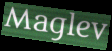
Maglev